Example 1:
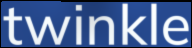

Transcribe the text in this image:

twinkle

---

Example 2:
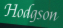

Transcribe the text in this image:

Hodgson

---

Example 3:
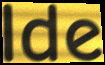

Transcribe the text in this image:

lde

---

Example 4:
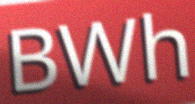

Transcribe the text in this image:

BWh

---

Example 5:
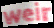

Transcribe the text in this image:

weir